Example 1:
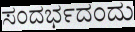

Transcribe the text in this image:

ಸಂದರ್ಭದಂದು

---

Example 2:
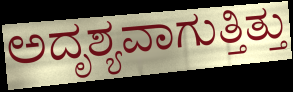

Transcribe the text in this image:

ಅದೃಶ್ಯವಾಗುತ್ತಿತ್ತು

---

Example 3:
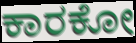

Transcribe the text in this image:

ಕಾರಕೋ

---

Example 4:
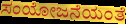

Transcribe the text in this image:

ಸಂಯೋಜನೆಯಂತೆ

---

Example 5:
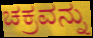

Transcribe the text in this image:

ಚಕ್ರವನ್ನು